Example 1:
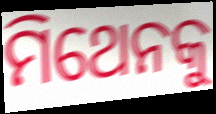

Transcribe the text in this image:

ମିଥେନକୁ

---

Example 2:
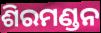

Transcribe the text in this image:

ଶିରମଣ୍ଡନ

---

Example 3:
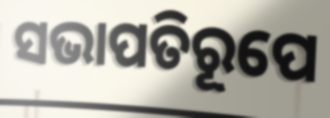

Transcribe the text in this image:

ସଭାପତିରୂପେ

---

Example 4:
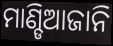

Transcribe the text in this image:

ମାଣ୍ଡିଆଜାନି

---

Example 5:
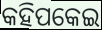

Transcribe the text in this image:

କହିପକେଇ